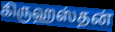
கிருஹஸ்தன்